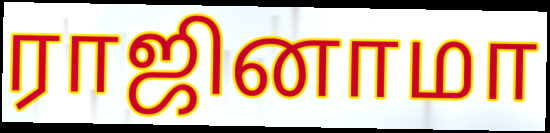
ராஜினாமா